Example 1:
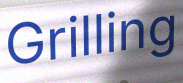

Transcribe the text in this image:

Grilling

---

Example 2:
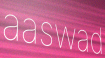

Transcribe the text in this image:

aaswad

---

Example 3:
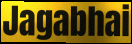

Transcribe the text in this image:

Jagabhai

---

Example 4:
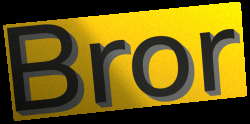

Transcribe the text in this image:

Bror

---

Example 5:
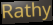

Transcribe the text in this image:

Rathy